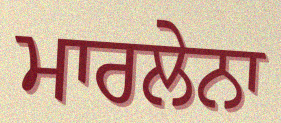
ਮਾਰਲੇਨਾ